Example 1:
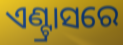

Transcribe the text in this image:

ଏଣ୍ଟ୍ରାସରେ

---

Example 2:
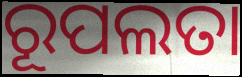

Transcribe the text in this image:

ରୂପଲତା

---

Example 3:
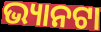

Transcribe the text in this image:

ଭ୍ୟାନଟା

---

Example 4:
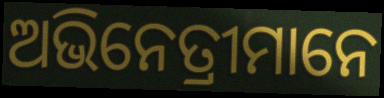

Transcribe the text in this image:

ଅଭିନେତ୍ରୀମାନେ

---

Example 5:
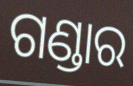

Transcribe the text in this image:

ଗଣ୍ଡାର